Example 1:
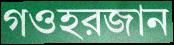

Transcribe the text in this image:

গওহরজান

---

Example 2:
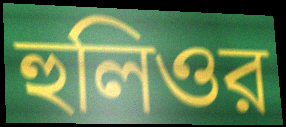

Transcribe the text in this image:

হুলিওর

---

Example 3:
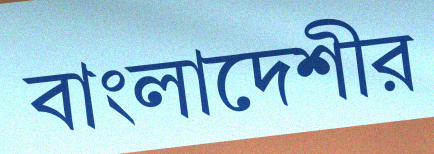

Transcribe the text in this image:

বাংলাদেশীর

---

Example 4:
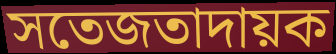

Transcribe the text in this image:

সতেজতাদায়ক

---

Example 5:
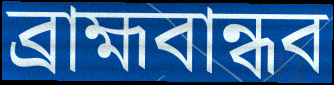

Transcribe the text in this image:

ব্রাহ্মবান্ধব